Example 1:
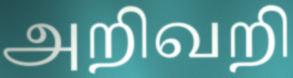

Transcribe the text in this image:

அறிவறி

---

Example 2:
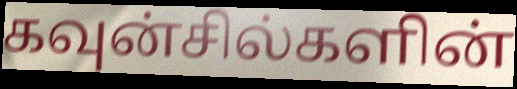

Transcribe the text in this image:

கவுன்சில்களின்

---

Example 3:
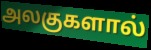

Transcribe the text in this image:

அலகுகளால்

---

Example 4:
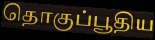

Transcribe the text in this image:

தொகுப்பூதிய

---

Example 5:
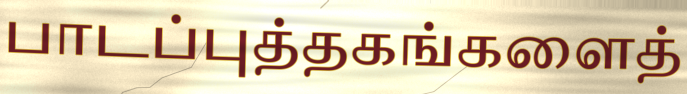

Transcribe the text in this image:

பாடப்புத்தகங்களைத்